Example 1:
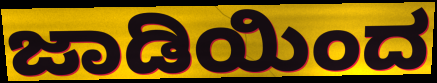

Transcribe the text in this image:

ಜಾಡಿಯಿಂದ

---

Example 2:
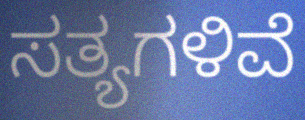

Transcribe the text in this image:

ಸತ್ಯಗಳಿವೆ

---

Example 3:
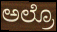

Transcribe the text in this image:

ಅಲ್ರೊ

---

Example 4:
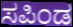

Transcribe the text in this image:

ಸಪಿಂಡ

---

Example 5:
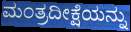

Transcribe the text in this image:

ಮಂತ್ರದೀಕ್ಷೆಯನ್ನು